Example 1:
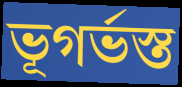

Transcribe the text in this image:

ভূগর্ভস্ত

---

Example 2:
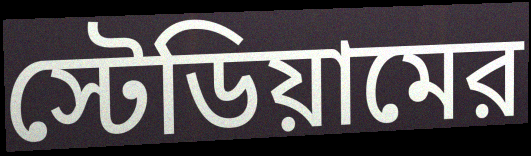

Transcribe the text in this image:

স্টেডিয়ামের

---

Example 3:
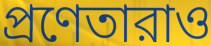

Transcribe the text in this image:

প্রণেতারাও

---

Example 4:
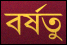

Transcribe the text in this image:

বর্ষতু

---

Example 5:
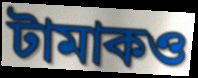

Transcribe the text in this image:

টামাকও